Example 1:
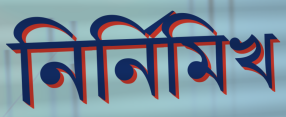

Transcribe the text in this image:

নির্নিমিখ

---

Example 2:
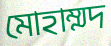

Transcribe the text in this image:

মোহাম্মদ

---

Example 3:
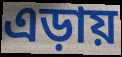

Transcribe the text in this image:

এড়ায়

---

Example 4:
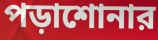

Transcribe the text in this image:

পড়াশোনার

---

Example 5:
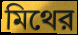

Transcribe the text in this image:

মিথের